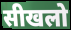
सीखलो